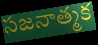
సజనాత్మక